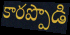
కారప్పొడి